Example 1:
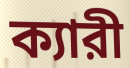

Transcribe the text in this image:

ক্যারী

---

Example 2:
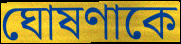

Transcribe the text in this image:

ঘোষণাকে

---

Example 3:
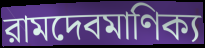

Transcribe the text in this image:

রামদেবমাণিক্য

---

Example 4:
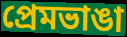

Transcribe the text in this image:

প্রেমভাঙা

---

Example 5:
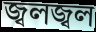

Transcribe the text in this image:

জ্বলজ্বল